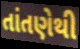
તાંતણેથી